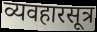
व्यवहारसूत्र